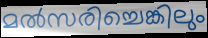
മൽസരിച്ചെങ്കിലും